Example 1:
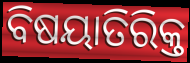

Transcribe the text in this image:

ବିଷୟାତିରିକ୍ତ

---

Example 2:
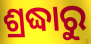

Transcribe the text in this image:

ଶ୍ରଦ୍ଧାରୁ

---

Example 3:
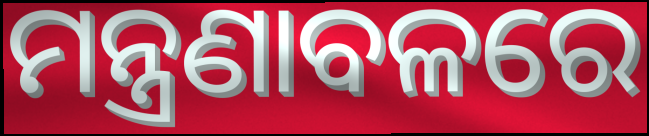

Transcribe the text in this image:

ମନ୍ତ୍ରଣାବଳରେ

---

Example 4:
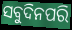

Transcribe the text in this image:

ସବୁଦିନପରି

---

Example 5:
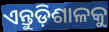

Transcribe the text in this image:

ଏନ୍ତୁଡ଼ିଶାଳକୁ